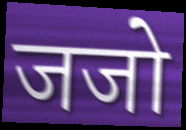
जजो